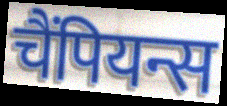
चैंपियन्स